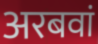
अरबवां